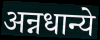
अन्नधान्ये